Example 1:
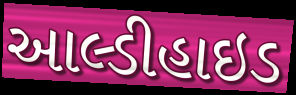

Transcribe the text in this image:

આલ્ડીહાઇડ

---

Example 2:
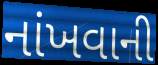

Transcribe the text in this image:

નાંખવાની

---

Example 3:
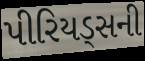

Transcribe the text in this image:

પીરિયડ્સની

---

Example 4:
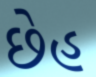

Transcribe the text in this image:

છેહ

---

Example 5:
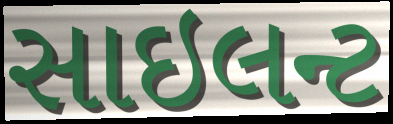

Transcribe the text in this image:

સાઇલન્ટ